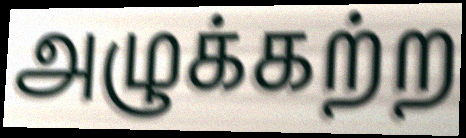
அழுக்கற்ற